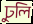
ঢুলি